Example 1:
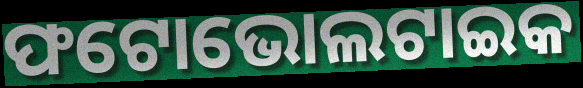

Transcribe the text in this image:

ଫଟୋଭୋଲଟାଇକ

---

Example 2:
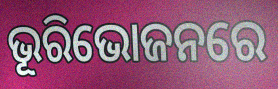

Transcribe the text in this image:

ଭୂରିଭୋଜନରେ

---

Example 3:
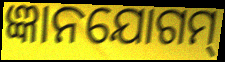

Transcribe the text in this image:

ଜ୍ଞାନଯୋଗମ୍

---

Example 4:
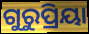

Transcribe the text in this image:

ଗୁରୁପ୍ରିୟା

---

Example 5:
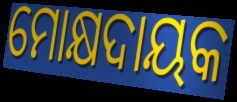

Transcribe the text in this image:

ମୋକ୍ଷଦାୟକ